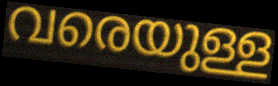
വരെയുള്ള